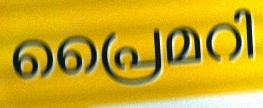
പ്രൈമറി